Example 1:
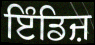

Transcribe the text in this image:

ਇੰਡਿਜ਼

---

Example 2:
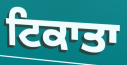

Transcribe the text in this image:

ਟਿਕਾਤਾ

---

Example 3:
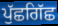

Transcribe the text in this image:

ਪੁੱਛਗਿੱਛ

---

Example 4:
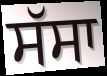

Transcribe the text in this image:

ਸੱਸਾ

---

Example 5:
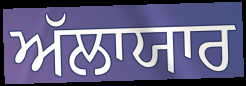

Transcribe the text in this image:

ਅੱਲਾਯਾਰ